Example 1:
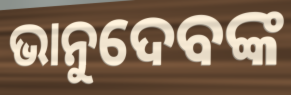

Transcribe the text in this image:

ଭାନୁଦେବଙ୍କ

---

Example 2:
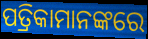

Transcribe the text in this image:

ପତ୍ରିକାମାନଙ୍କରେ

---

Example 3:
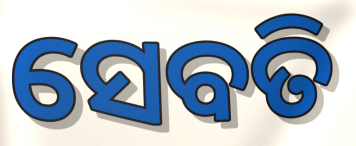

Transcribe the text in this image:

ସେବତି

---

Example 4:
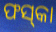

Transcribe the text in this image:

ଫସ୍‌କା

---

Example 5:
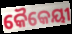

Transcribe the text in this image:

କୈକେୟୀ